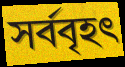
সৰ্ববৃহৎ